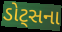
ડોટ્સના